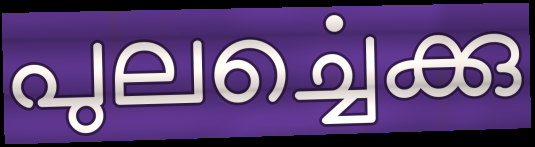
പുലൎച്ചെക്കു